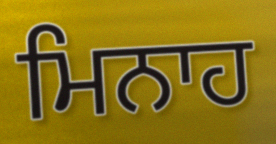
ਮਿਨਾਹ